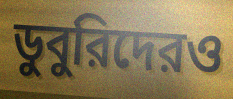
ডুবুরিদেরও